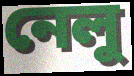
নেলু